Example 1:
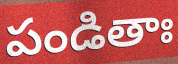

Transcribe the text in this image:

పండితాః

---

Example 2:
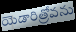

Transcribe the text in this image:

యెడారిత్రోవను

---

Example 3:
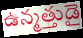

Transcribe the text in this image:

ఉన్మత్తుడై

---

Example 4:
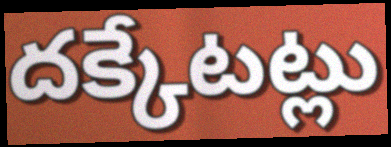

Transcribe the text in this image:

దక్కేటట్లు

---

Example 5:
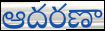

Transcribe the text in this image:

ఆదరణా